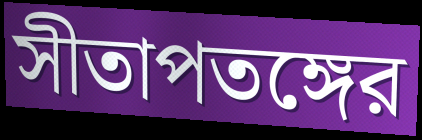
সীতাপতঙ্গের